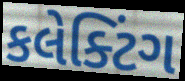
કલેક્ટિંગ